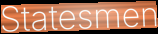
Statesmen